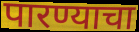
पारण्याचा